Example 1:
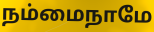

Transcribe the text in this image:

நம்மைநாமே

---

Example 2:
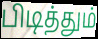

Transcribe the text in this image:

பிடித்தும்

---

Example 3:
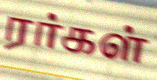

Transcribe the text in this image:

ரர்கள்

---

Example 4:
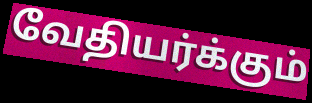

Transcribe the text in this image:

வேதியர்க்கும்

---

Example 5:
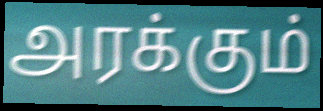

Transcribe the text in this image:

அரக்கும்